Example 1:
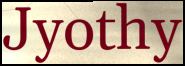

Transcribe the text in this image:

Jyothy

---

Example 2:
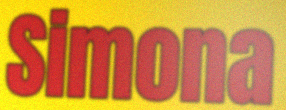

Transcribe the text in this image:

Simona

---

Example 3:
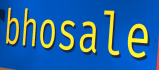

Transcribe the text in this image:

bhosale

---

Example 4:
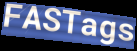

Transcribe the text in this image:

FASTags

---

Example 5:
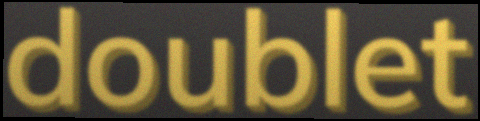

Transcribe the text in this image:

doublet